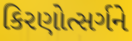
કિરણોત્સર્ગને